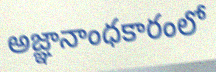
అజ్ఞానాంధకారంలో